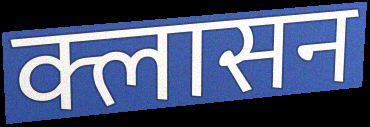
क्लासन